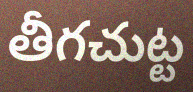
తీగచుట్ట